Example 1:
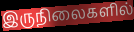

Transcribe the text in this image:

இருநிலைகளில்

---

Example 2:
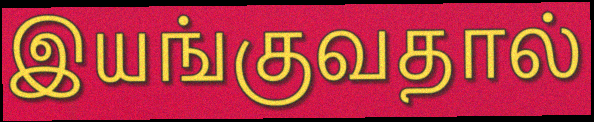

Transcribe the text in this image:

இயங்குவதால்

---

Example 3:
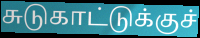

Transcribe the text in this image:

சுடுகாட்டுக்குச்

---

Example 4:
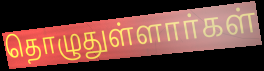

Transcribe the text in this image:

தொழுதுள்ளார்கள்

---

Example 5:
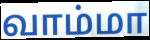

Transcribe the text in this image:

வாம்மா